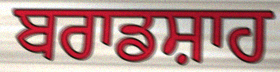
ਬਰਾਡਸ਼ਾਹ